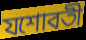
যশোবতী